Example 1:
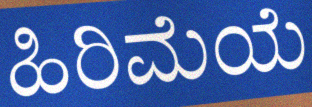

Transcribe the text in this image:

ಹಿರಿಮೆಯೆ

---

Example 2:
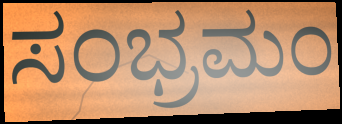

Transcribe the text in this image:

ಸಂಭ್ರಮಂ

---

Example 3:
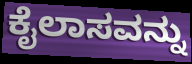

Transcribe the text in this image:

ಕೈಲಾಸವನ್ನು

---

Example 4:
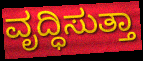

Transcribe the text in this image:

ವೃದ್ಧಿಸುತ್ತಾ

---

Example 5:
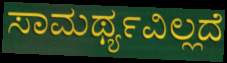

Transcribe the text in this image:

ಸಾಮರ್ಥ್ಯವಿಲ್ಲದೆ